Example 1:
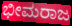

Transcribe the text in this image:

ಭೀಮರಾಜ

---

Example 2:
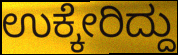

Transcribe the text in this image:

ಉಕ್ಕೇರಿದ್ದು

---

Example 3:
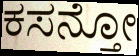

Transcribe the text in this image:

ಕಸನ್ತೋ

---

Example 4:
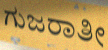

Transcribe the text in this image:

ಗುಜರಾತೀ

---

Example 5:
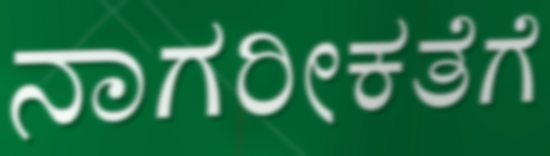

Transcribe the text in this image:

ನಾಗರೀಕತೆಗೆ